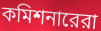
কমিশনারেরা